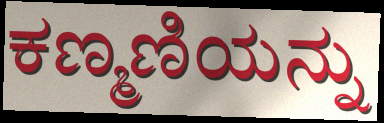
ಕಣ್ಮಣಿಯನ್ನು